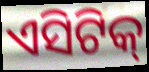
ଏସିଟିକ୍